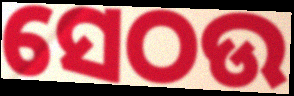
ସେଠଉ